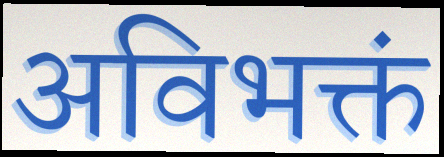
अविभक्तं